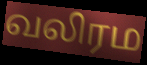
வலிரம